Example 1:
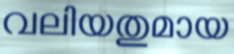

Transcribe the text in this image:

വലിയതുമായ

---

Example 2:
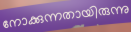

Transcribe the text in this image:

നോക്കുന്നതായിരുന്നു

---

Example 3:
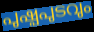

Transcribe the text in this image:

പുഷ്പപുടവും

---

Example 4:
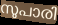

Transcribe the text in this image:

സുപാരി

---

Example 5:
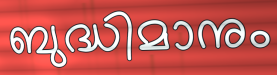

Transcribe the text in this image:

ബുദ്ധിമാനും